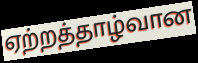
ஏற்றத்தாழ்வான